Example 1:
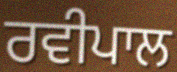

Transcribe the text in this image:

ਰਵੀਪਾਲ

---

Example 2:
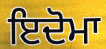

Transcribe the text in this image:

ਇਦੋਮਾ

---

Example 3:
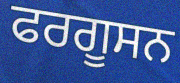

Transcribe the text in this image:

ਫਰਗੂਸਨ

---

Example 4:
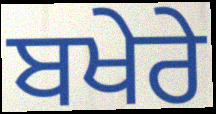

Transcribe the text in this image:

ਬਖੇਰੇ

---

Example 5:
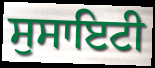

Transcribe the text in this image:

ਸੁਸਾਇਟੀ